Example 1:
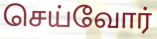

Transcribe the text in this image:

செய்வோர்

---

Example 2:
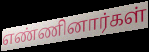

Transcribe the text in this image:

எண்ணினார்கள்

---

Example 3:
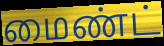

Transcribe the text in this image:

மைண்ட்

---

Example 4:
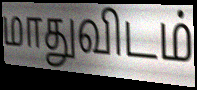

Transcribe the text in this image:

மாதுவிடம்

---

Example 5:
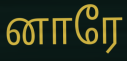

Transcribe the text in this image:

னாரே